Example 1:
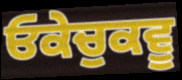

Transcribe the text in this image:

ਓਕੇਚੁਕਵੂ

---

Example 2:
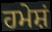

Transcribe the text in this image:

ਹਮੇਸ਼ਂ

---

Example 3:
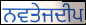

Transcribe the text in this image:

ਨਵਤੇਜਦੀਪ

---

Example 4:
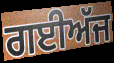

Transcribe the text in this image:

ਗਈਅੱਜ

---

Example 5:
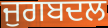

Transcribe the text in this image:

ਜੁਗਬਦਲ